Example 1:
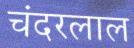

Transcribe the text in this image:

चंदरलाल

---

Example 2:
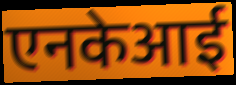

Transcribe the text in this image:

एनकेआई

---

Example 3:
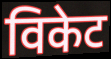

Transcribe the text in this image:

विकेट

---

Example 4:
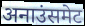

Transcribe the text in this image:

अनाउंसमेट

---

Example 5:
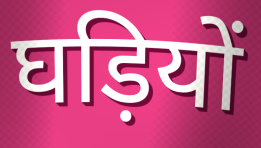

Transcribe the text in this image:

घड़ियों